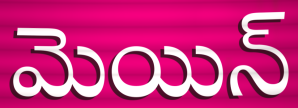
మెయిన్